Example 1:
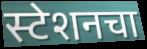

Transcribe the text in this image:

स्टेशनचा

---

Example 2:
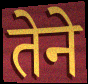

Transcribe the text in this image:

तेने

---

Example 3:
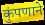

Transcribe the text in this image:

कुंपणाने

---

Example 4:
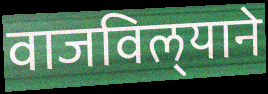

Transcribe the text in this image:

वाजविल्याने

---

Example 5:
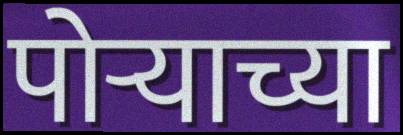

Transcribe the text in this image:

पोऱ्याच्या